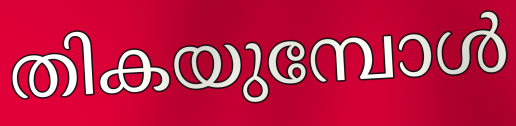
തികയുമ്പോൾ